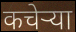
कचेऱ्या